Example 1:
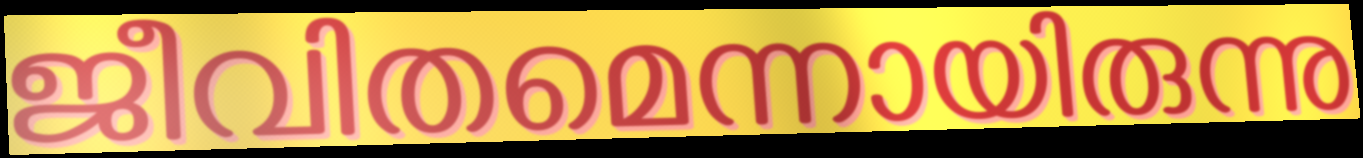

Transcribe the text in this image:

ജീവിതമെന്നായിരുന്നു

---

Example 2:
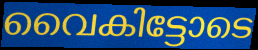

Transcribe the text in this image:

വൈകിട്ടോടെ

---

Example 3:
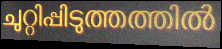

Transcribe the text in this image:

ചുറ്റിപ്പിടുത്തത്തിൽ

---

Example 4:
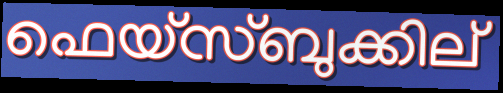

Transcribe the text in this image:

ഫെയ്സ്ബുക്കില്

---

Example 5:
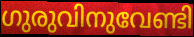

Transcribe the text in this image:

ഗുരുവിനുവേണ്ടി